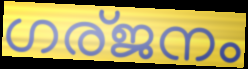
ഗര്ജനം